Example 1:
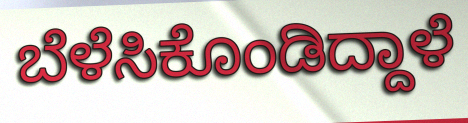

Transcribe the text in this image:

ಬೆಳೆಸಿಕೊಂಡಿದ್ದಾಳೆ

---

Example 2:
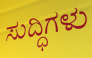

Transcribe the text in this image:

ಸುದ್ಧಿಗಳು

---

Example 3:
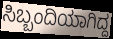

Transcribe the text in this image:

ಸಿಬ್ಬಂದಿಯಾಗಿದ್ದ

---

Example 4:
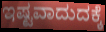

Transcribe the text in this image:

ಇಷ್ಟವಾದುದಕ್ಕೆ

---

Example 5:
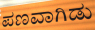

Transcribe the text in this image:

ಪಣವಾಗಿಡು